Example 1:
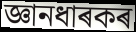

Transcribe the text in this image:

জ্ঞানধাৰকৰ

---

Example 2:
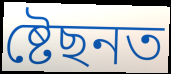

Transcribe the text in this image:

ষ্টেছনত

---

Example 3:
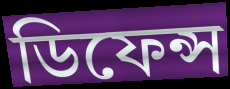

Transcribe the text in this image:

ডিফেন্স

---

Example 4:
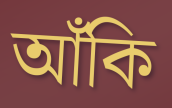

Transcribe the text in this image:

আঁকি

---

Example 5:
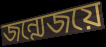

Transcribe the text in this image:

জন্মেজয়ে